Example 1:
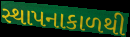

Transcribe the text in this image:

સ્થાપનાકાળથી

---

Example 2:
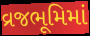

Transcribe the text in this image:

વ્રજભૂમિમાં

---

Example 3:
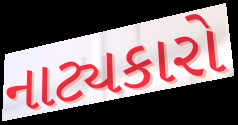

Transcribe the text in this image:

નાટ્યકારો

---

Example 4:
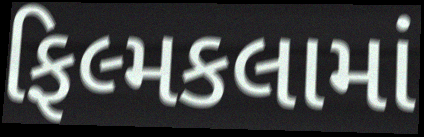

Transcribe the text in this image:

ફિલ્મકલામાં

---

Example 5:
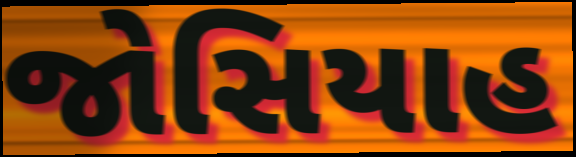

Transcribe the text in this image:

જોસિયાહ